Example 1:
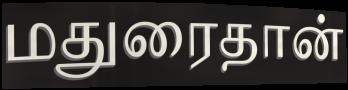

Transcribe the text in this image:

மதுரைதான்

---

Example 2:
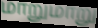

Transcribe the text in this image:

மாறுமாறு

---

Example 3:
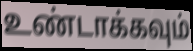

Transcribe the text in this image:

உண்டாக்கவும்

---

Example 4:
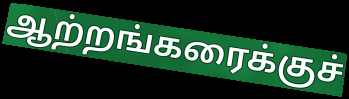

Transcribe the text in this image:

ஆற்றங்கரைக்குச்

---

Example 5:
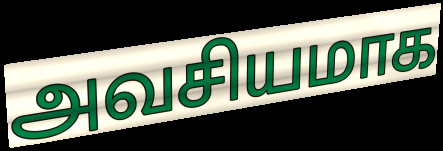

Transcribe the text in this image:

அவசியமாக